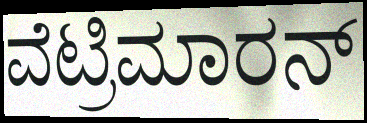
ವೆಟ್ರಿಮಾರನ್